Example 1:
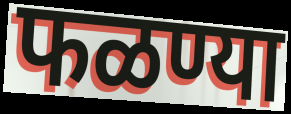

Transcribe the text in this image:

फळण्या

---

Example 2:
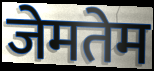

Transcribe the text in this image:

जेमतेम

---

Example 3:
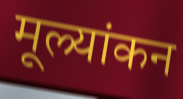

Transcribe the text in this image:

मूल्यांकन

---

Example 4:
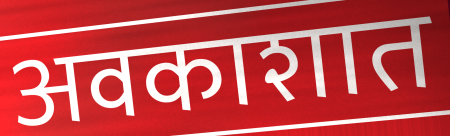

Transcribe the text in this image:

अवकाशात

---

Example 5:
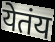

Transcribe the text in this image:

येतंय